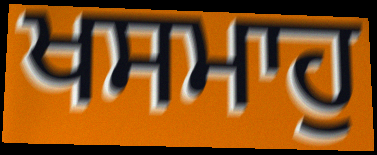
ਖਸਮਾਹੁ